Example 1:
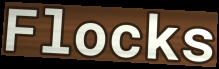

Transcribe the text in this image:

Flocks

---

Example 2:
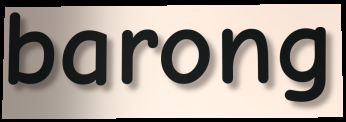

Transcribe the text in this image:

barong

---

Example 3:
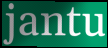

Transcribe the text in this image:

jantu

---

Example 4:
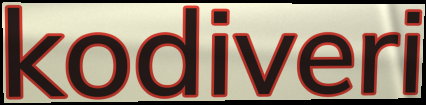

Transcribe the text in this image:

kodiveri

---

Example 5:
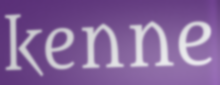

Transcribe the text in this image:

kenne